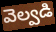
వెల్వడి